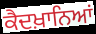
ਕੈਦਖ਼ਾਨਿਆਂ